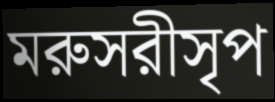
মরুসরীসৃপ